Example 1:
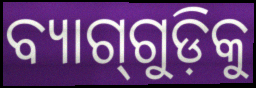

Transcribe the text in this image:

ବ୍ୟାଗ୍‍ଗୁଡ଼ିକୁ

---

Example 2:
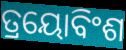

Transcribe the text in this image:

ତ୍ରୟୋବିଂଶ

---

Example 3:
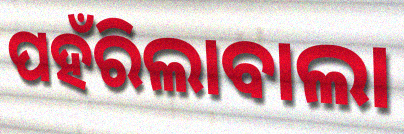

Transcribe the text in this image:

ପହଁରିଲାବାଲା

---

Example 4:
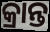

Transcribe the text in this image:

କ୍ରାନ୍ତ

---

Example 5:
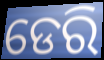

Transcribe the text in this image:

ଡେରି